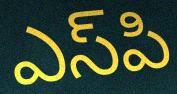
ఎస్‌పి